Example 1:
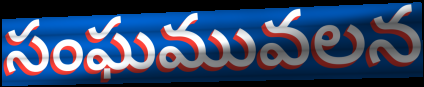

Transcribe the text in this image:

సంఘమువలన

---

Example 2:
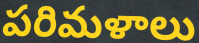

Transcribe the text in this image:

పరిమళాలు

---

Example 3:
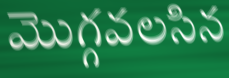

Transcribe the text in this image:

మొగ్గవలసిన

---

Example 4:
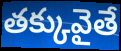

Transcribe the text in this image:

తక్కువైతే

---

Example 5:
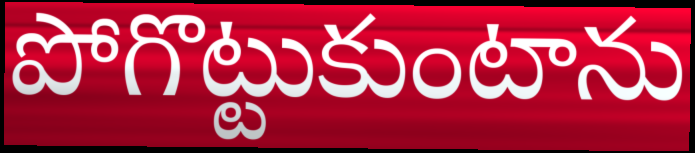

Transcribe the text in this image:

పోగొట్టుకుంటాను